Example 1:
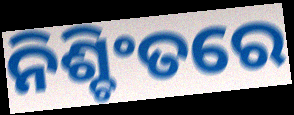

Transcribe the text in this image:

ନିଶ୍ଚିଂତରେ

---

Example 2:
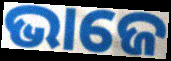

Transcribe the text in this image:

ଭାଜେ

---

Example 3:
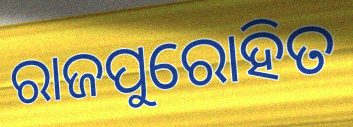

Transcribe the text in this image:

ରାଜପୁରୋହିତ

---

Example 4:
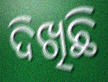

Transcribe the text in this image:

ଦିଖିଛି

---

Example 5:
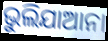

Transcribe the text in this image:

ଭୁଲିଯାଆନା